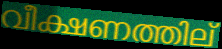
വീക്ഷണത്തില്